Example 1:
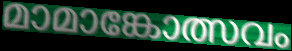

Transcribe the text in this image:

മാമാങ്കോത്സവം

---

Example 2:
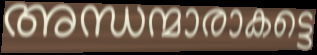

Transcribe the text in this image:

അന്ധന്മാരാകട്ടെ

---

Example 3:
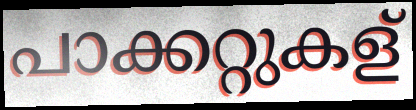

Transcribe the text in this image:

പാക്കറ്റുകള്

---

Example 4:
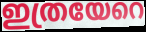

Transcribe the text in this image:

ഇത്രയേറെ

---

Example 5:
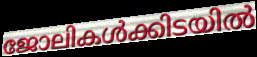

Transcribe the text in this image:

ജോലികൾക്കിടയിൽ